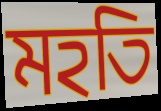
মহতি